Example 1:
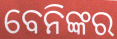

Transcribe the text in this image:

ବେନିଙ୍କର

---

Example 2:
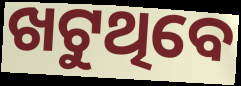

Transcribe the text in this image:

ଖଟୁଥିବେ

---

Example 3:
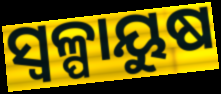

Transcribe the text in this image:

ସ୍ୱଳ୍ପାୟୁଷ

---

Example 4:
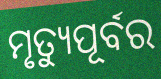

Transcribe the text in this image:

ମୃତ୍ୟୁପୂର୍ବର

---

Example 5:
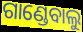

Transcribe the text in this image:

ଗାଣ୍ଡେବାଲୁ